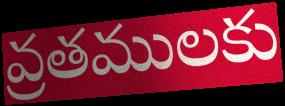
వ్రతములకు